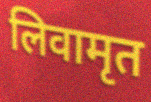
लिवामृत